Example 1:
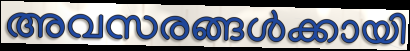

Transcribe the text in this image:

അവസരങ്ങൾക്കായി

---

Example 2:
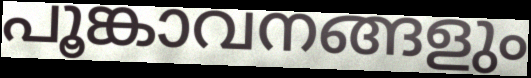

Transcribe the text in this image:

പൂങ്കാവനങ്ങളും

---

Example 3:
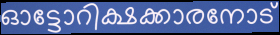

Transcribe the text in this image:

ഓട്ടോറിക്ഷക്കാരനോട്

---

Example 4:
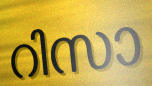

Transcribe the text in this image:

റിസാ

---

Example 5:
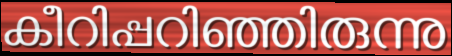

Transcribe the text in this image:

കീറിപ്പറിഞ്ഞിരുന്നു